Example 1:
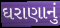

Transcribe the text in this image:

ઘરાણાનું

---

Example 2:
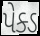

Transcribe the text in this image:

પેક્ડ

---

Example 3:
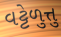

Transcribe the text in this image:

વટ્ટેળુત્તુ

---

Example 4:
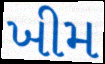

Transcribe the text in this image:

ખીમ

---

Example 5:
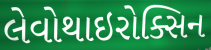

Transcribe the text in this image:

લેવોથાઇરોક્સિન